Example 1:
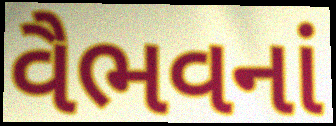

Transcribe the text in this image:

વૈભવનાં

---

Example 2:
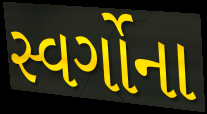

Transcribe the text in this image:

સ્વર્ગોના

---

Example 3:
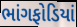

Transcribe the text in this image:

ભાંગફોડિયાં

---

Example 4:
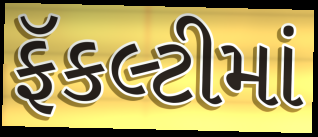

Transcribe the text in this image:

ફૅકલ્ટીમાં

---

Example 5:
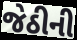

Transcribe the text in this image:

જેઠીની